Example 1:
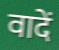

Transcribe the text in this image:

वादें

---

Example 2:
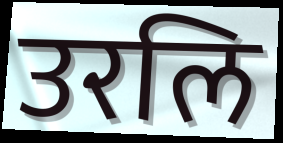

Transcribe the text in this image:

उरलि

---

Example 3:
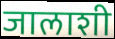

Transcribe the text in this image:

जालाशी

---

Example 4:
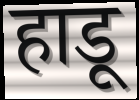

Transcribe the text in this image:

हाडू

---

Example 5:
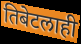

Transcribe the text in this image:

तिबेटलाही